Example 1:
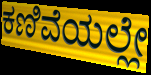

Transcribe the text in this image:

ಕಣಿವೆಯಲ್ಲೇ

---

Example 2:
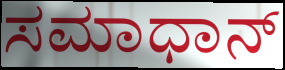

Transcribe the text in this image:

ಸಮಾಧಾನ್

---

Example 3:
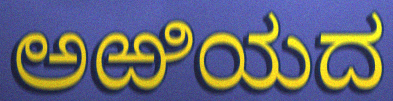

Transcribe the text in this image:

ಅಱಿಯದ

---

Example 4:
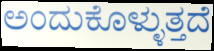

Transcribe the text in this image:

ಅಂದುಕೊಳ್ಳುತ್ತದೆ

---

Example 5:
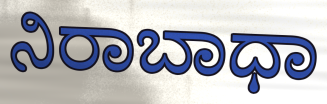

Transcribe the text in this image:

ನಿರಾಬಾಧಾ